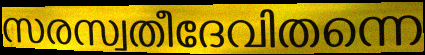
സരസ്വതീദേവിതന്നെ